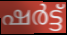
ഷർട്ട്